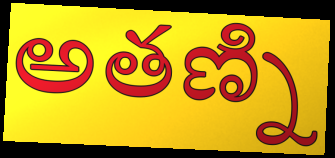
అతణ్ని